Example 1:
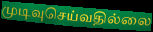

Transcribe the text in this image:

முடிவுசெய்வதில்லை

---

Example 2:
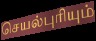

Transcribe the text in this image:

செயல்புரியும்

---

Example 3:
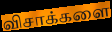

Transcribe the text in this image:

விசாக்களை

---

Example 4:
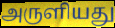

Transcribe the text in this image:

அருளியது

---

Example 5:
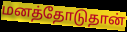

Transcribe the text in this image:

மனத்தோடுதான்